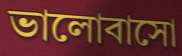
ভালোবাসো